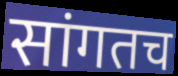
सांगतच